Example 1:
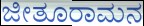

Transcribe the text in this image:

ಜೀತೂರಾಮನ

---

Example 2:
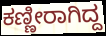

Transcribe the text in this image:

ಕಣ್ಣೀರಾಗಿದ್ದ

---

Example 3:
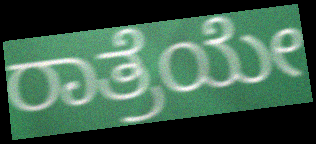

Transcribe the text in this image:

ರಾತ್ರೆಯೇ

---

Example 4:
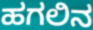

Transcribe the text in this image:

ಹಗಲಿನ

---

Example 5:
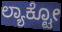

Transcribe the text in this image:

ಲ್ಯಾಕ್ಟೋ